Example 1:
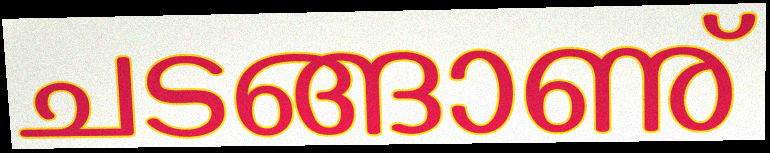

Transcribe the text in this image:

ചടങ്ങാണു്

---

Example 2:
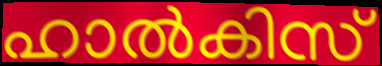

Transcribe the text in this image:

ഹാൽകിസ്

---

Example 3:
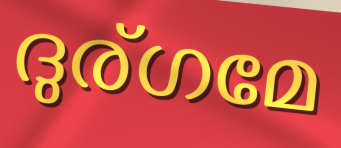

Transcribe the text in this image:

ദുര്ഗമേ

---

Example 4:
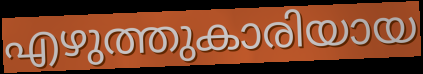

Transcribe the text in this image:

എഴുത്തുകാരിയായ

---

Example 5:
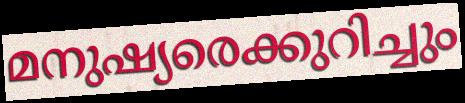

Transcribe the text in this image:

മനുഷ്യരെക്കുറിച്ചും